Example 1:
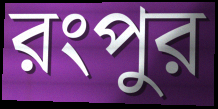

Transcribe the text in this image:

রংপুর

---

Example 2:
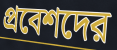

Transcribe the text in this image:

প্রবেশদের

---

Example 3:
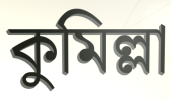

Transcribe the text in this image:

কুমিল্লা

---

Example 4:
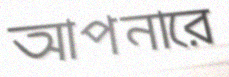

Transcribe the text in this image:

আপনারে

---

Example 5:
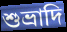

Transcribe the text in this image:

শুভ্রাদি